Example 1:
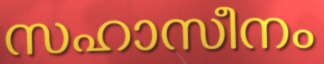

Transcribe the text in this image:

സഹാസീനം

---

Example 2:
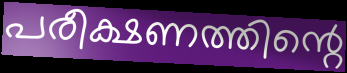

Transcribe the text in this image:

പരീക്ഷണത്തിന്റെ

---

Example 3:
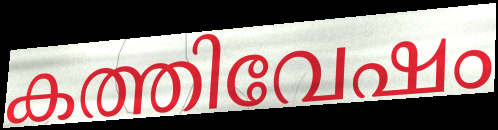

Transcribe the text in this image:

കത്തിവേഷം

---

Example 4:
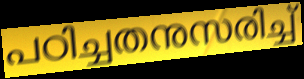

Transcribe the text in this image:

പഠിച്ചതനുസരിച്ച്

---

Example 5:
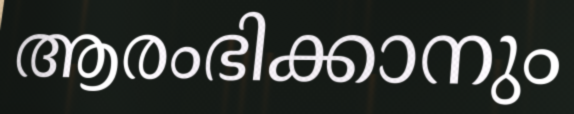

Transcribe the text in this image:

ആരംഭിക്കാനും